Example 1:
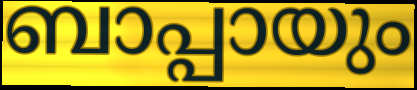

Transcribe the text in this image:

ബാപ്പായും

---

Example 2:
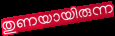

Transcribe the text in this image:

തുണയായിരുന്ന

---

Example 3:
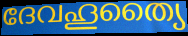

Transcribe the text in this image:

ദേവഹൂത്യൈ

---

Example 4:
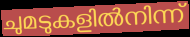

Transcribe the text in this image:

ചുമടുകളിൽനിന്ന്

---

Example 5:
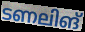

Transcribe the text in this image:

ടണലിങ്